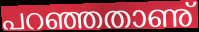
പറഞ്ഞതാണു്